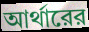
আর্থারের